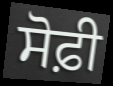
ਸੋਫ਼ੀ